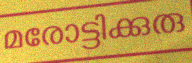
മരോട്ടിക്കുരു